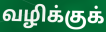
வழிக்குக்